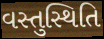
વસ્તુસ્થિતિ